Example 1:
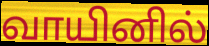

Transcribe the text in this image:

வாயினில்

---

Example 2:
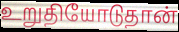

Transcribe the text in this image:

உறுதியோடுதான்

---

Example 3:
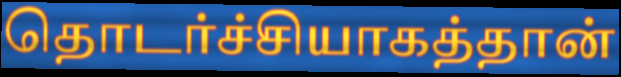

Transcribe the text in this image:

தொடர்ச்சியாகத்தான்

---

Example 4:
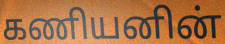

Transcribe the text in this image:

கணியனின்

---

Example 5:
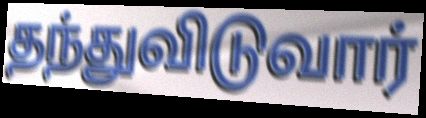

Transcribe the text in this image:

தந்துவிடுவார்